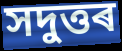
সদুত্তৰ